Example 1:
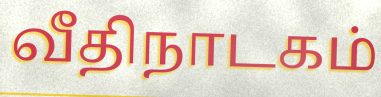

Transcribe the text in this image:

வீதிநாடகம்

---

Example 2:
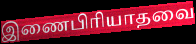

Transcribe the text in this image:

இணைபிரியாதவை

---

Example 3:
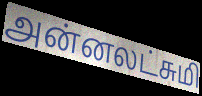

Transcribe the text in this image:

அன்னலட்சுமி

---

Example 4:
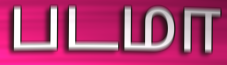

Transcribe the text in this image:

படமா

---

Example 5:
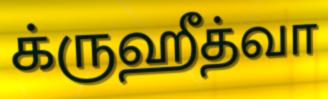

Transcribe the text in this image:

க்ருஹீத்வா